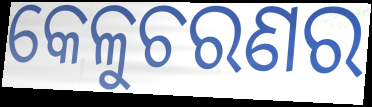
କେଳୁଚରଣର